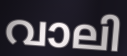
വാലി